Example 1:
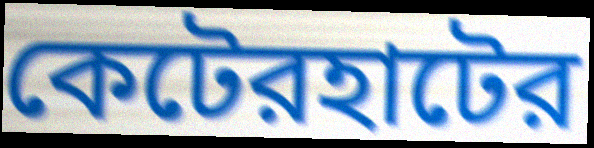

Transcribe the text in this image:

কেটেরহাটের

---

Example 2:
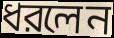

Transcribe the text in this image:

ধরলেন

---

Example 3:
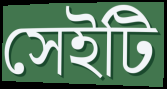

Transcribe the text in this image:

সেইটি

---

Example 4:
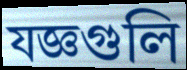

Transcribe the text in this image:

যজ্ঞগুলি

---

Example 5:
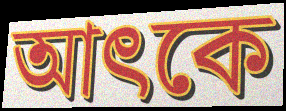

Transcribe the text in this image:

আৎকে